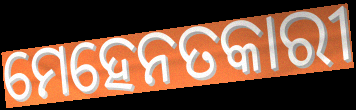
ମେହେନତକାରୀ